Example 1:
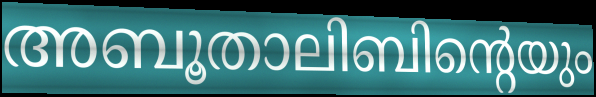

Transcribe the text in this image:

അബൂതാലിബിന്റെയും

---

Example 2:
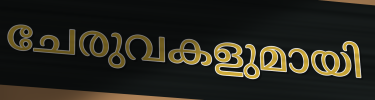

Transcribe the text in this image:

ചേരുവകളുമായി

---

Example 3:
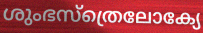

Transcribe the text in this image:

ശുംഭസ്ത്രെലോക്യേ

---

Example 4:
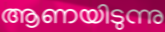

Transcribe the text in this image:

ആണയിടുന്നു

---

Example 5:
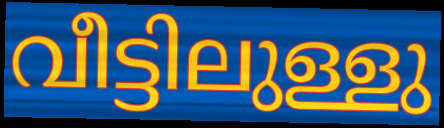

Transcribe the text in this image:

വീട്ടിലുള്ളു